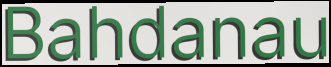
Bahdanau